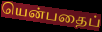
யென்பதைப்